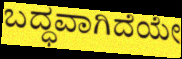
ಬದ್ಧವಾಗಿದೆಯೇ